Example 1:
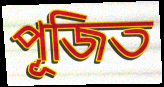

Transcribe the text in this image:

পূজিত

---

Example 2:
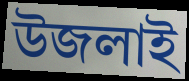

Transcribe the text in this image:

উজলাই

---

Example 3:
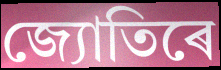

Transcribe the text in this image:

জ্যোতিৰে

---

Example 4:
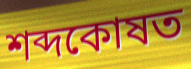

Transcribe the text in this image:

শব্দকোষত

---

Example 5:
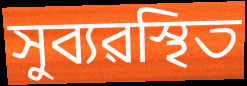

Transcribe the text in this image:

সুব্যৱস্থিত